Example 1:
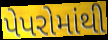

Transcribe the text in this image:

પેપરોમાંથી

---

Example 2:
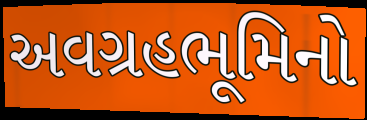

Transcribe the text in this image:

અવગ્રહભૂમિનો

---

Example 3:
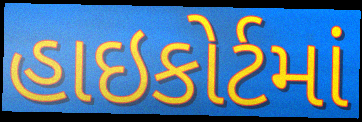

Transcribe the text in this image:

હાઇકોર્ટમાં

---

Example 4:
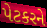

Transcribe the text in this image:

પેટકરને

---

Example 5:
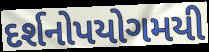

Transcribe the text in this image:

દર્શનોપયોગમયી